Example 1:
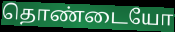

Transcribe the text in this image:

தொண்டையோ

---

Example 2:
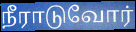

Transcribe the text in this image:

நீராடுவோர்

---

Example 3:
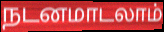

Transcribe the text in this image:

நடனமாடலாம்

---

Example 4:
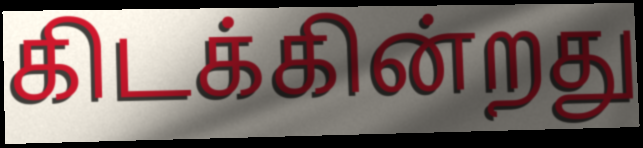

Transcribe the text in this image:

கிடக்கின்றது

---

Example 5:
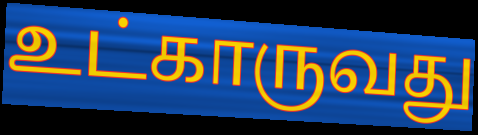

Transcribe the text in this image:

உட்காருவது